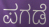
ಪಗಡೆ